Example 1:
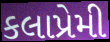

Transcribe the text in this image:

કલાપ્રેમી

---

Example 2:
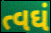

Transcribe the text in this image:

ત્વઘં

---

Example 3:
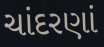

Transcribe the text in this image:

ચાંદરણાં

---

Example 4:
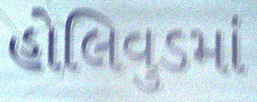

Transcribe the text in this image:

હોલિવુડમાં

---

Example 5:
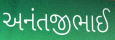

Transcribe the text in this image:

અનંતજીભાઈ